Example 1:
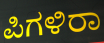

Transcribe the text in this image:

ಪಿಗಳಿರಾ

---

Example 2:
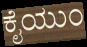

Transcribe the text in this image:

ಕೈಯುಂ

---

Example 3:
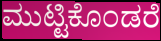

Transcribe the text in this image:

ಮುಟ್ಟಿಕೊಂಡರೆ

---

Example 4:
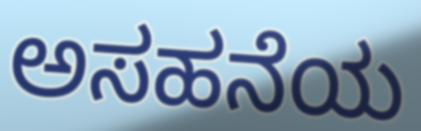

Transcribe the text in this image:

ಅಸಹನೆಯ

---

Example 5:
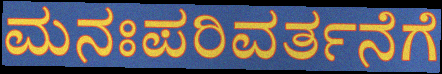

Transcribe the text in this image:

ಮನಃಪರಿವರ್ತನೆಗೆ